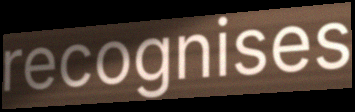
recognises